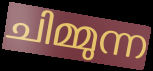
ചിമ്മുന്ന